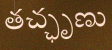
తచ్ఛృణు